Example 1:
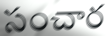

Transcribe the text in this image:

సంచార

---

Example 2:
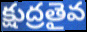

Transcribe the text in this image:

క్షుద్రతైవ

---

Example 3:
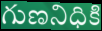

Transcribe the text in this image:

గుణనిధికి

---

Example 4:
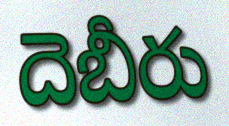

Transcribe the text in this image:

దెబీరు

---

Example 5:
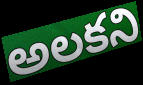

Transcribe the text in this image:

అలకని